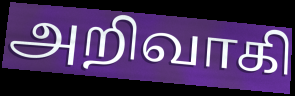
அறிவாகி